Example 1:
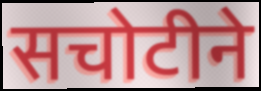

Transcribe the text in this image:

सचोटीने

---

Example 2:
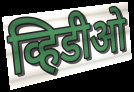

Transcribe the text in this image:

व्हिडीओ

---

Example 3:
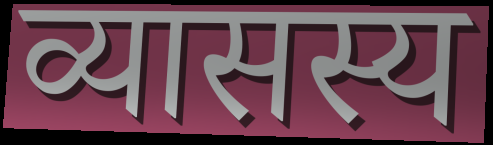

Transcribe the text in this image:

व्यासस्य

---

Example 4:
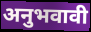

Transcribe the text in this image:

अनुभवावी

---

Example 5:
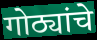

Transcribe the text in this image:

गोठ्यांचे